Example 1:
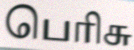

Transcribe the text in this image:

பெரிசு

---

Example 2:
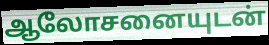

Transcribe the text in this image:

ஆலோசனையுடன்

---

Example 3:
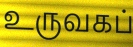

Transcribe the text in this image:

உருவகப்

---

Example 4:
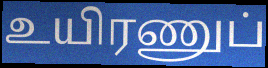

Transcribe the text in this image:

உயிரணுப்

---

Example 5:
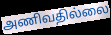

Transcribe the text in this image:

அணிவதில்லை